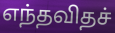
எந்தவிதச்